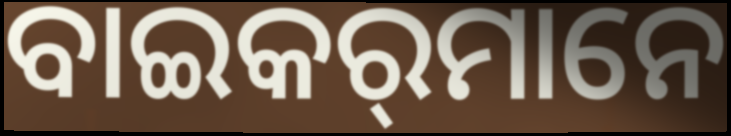
ବାଇକର୍‌ମାନେ